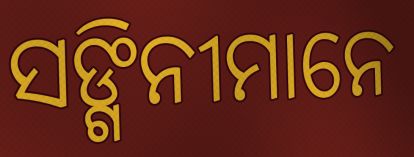
ସଙ୍ଗିନୀମାନେ